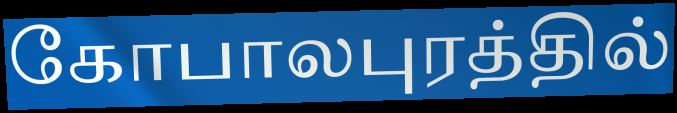
கோபாலபுரத்தில்